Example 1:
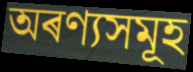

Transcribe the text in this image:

অৰণ্যসমূহ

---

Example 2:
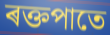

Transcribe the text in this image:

ৰক্তপাতে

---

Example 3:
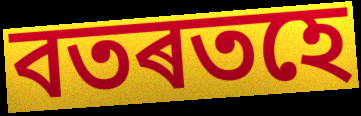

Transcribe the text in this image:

বতৰতহে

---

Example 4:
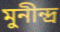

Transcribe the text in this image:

মুনীন্দ্ৰ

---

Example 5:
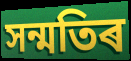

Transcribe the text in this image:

সন্মতিৰ